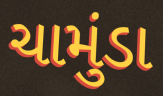
ચામુંડા